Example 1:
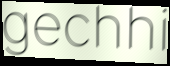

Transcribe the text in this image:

gechhi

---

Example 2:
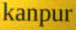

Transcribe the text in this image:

kanpur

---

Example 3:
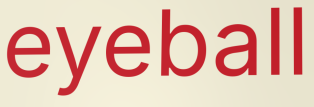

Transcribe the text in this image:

eyeball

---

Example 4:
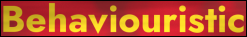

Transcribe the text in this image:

Behaviouristic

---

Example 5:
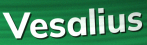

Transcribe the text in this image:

Vesalius